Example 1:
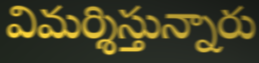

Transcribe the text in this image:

విమర్శిస్తున్నారు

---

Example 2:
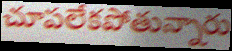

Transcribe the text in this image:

చూపలేకపోతున్నారు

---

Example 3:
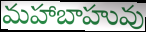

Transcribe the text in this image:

మహాబాహువు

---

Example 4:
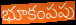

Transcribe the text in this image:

భూకంపపు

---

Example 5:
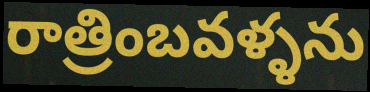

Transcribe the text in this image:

రాత్రింబవళ్ళను